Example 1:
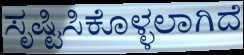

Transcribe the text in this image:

ಸೃಷ್ಟಿಸಿಕೊಳ್ಳಲಾಗಿದೆ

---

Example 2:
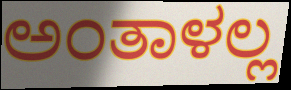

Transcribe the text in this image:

ಅಂತಾಳಲ್ಲ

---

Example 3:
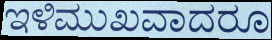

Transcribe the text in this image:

ಇಳಿಮುಖವಾದರೂ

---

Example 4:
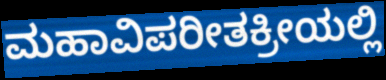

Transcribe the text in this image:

ಮಹಾವಿಪರೀತಕ್ರೀಯಲ್ಲಿ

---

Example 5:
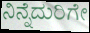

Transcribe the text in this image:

ನಿನ್ನೆದುರಿಗೇ